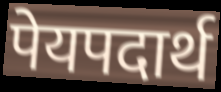
पेयपदार्थ